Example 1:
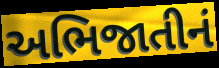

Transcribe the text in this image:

અભિજાતીનં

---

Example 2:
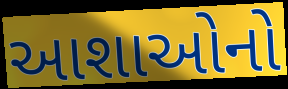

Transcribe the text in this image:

આશાઓનો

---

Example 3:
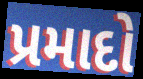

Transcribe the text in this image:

પ્રમાદો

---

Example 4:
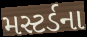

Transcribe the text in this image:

મસ્ટર્ડના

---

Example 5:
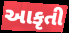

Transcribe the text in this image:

આકૃતી